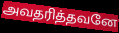
அவதரித்தவனே